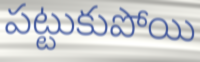
పట్టుకుపోయి